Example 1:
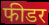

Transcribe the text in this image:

फीडर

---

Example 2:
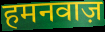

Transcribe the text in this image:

हमनवाज़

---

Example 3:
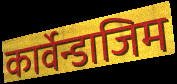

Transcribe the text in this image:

कार्वेन्डाजिम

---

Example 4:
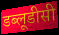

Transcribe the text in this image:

डब्लूडीसी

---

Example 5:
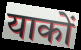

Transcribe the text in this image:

याकों